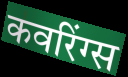
कवरिंग्स